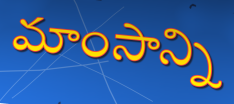
మాంసాన్ని